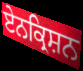
ਏਨਕ੍ਰਿਸ਼ਨ